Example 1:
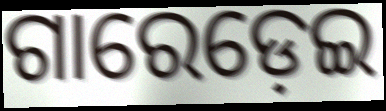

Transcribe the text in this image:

ଗାରେଡ଼େଇ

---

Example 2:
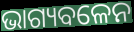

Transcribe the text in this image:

ଭାଗ୍ୟବଳେନ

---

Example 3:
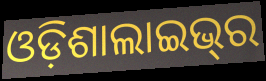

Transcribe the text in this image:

ଓଡ଼ିଶାଲାଇଭ୍‌ର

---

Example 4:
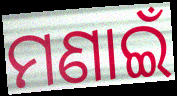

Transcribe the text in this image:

ମଣାଇଁ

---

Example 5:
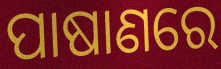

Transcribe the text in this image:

ପାଷାଣରେ